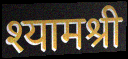
श्यामश्री